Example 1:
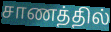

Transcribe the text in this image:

சாணத்தில்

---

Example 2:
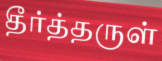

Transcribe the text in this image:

தீர்த்தருள்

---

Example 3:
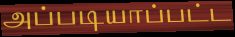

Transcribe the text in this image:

அப்படியாப்பட்ட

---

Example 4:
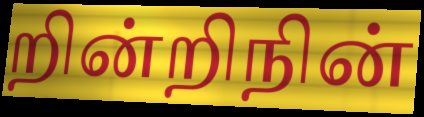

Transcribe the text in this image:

றின்றிநின்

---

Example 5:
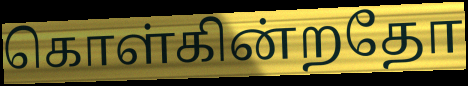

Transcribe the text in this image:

கொள்கின்றதோ